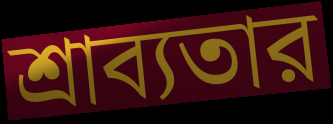
শ্রাব্যতার